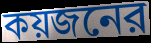
কয়জনের